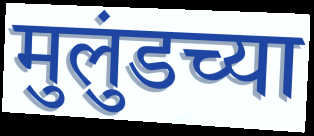
मुलुंडच्या